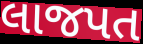
લાજપત